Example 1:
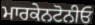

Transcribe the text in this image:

ਮਾਰਕੇਨਟੋਨੀਓ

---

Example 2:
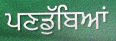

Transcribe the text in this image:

ਪਣਡੁੱਬਿਆਂ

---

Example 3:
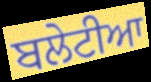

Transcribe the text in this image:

ਬਲੇਟੀਆ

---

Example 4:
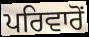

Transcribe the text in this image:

ਪਰਿਵਾਰੋਂ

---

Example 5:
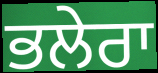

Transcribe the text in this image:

ਭਲੇਰਾ